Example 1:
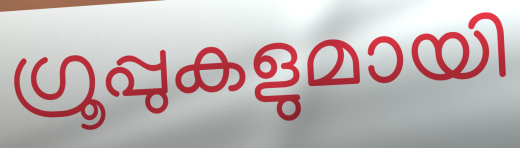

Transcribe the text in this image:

ഗ്രൂപ്പുകളുമായി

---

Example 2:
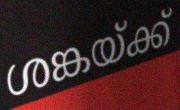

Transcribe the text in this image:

ശങ്കയ്ക്ക്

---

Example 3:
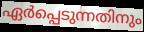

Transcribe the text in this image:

ഏർപ്പെടുന്നതിനും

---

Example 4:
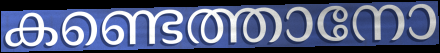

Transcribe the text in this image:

കണ്ടെത്താനോ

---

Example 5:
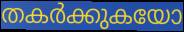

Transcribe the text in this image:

തകർക്കുകയോ